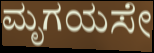
ಮೃಗಯಸೇ